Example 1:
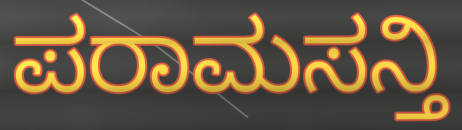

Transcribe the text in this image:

ಪರಾಮಸನ್ತಿ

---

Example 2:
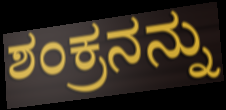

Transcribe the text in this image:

ಶಂಕ್ರನನ್ನು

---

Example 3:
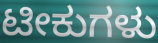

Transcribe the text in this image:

ಟೀಕುಗಳು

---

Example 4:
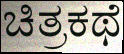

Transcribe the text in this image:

ಚಿತ್ರಕಥೆ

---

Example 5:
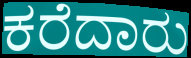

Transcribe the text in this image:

ಕರೆದಾರು